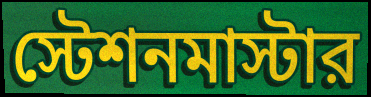
স্টেশনমাস্টার